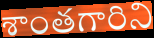
శాంతగారిని